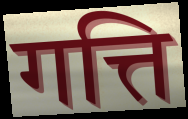
गत्ति